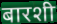
बारशी